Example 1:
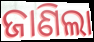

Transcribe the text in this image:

ଜାଣିଲା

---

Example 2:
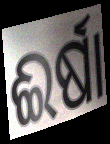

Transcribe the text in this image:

ଈର୍ଷା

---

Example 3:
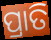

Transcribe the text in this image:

ପ୍ରାତି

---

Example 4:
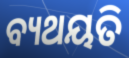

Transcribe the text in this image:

ବ୍ୟଥୟତି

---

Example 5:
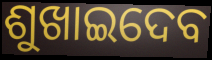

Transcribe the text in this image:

ଶୁଖାଇଦେବ